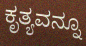
ಕೃತ್ಯವನ್ನೂ